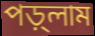
পড়্‌লাম